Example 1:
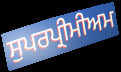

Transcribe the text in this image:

ਸੁਪਰਪ੍ਰੀਮੀਅਮ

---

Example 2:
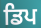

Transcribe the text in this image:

ਡਿਪ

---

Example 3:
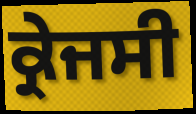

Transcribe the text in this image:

ਕ੍ਰੇਜਸੀ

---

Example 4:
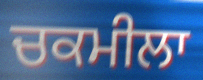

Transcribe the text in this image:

ਚਕਮੀਲਾ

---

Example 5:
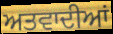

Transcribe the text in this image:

ਅਤਵਾਦੀਆਂ